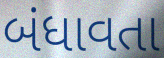
બંધાવતા